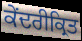
ਕੇਂਦਰੀਕ੍ਰਿਤ